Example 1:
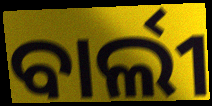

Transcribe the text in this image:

ବାର୍ଲୀ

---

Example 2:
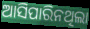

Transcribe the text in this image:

ଆସିପାରିନଥିଲା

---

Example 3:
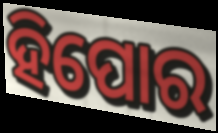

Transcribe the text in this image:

ହିପୋର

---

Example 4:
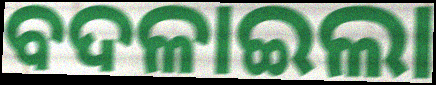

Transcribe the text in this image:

ବଦଳାଇଲା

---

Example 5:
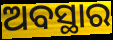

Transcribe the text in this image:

ଅବସ୍ଥାର